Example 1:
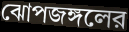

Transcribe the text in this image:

ঝোপজঙ্গলের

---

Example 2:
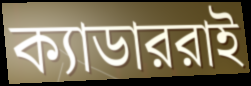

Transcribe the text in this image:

ক্যাডাররাই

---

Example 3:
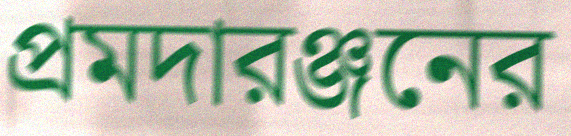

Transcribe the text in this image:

প্রমদারঞ্জনের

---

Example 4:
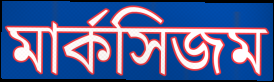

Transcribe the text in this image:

মার্কসিজম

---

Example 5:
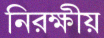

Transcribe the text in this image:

নিরক্ষীয়